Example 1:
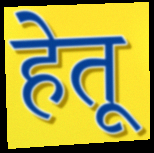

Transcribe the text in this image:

हेतू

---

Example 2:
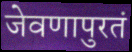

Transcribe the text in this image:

जेवणापुरतं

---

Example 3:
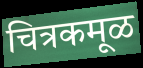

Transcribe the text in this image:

चित्रकमूळ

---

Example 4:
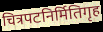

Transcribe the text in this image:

चित्रपटनिर्मितिगृह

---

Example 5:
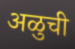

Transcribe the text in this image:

अळुची